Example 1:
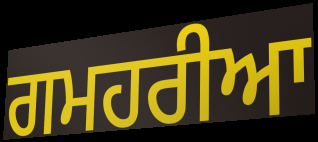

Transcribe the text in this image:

ਗਮਹਰੀਆ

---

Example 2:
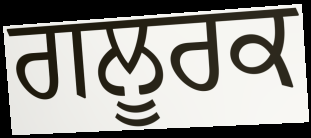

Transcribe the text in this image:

ਗਲੂਰਕ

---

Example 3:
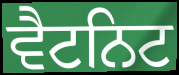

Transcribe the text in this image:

ਵੈਟਨਿਟ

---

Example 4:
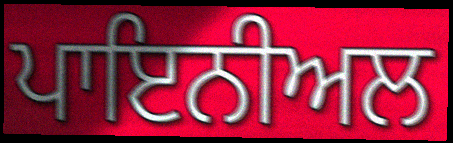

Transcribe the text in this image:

ਪਾਇਨੀਅਲ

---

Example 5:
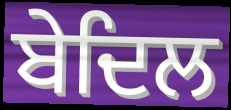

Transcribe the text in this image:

ਬੇਦਿਲ